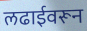
लढाईवरून